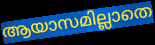
ആയാസമില്ലാതെ